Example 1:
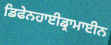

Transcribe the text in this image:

ਡਿਫੇਨਹਾਈਡ੍ਰਾਮਾਈਨ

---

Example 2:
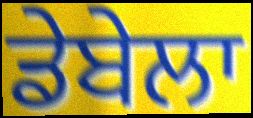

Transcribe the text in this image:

ਡੇਬੇਲਾ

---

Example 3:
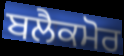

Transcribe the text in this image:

ਬਲੈਕਮੋਰ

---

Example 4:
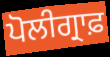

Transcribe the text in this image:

ਪੋਲੀਗ੍ਰਾਫ਼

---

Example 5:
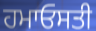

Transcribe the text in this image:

ਹਮਾਓਸਤੀ